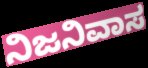
ನಿಜನಿವಾಸ